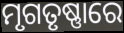
ମୃଗତୃଷ୍ଣାରେ